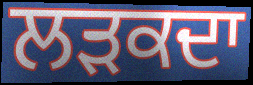
ਲੜਕਦਾ